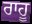
ਰਾਹੂ